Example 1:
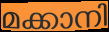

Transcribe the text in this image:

മക്കാനി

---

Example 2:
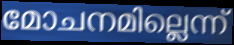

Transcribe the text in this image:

മോചനമില്ലെന്ന്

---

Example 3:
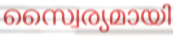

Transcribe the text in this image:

സ്വൈര്യമായി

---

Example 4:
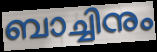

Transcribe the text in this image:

ബാച്ചിനും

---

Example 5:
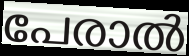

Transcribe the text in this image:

പേരാൽ